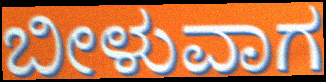
ಬೀಳುವಾಗ